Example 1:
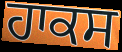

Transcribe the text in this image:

ਹਾਕਸ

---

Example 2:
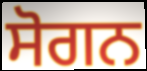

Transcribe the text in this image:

ਸੋਗਨ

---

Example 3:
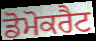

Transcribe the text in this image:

ਡੋਮੋਕਰੈਟ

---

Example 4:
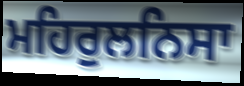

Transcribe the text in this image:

ਮਹਿਰੁਲਨਿਸਾ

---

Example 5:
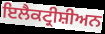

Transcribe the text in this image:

ਇਲੈਕਟ੍ਰੀਸ਼ੀਅਨ